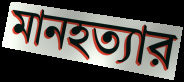
মানহত্যার